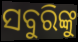
ସବୁରିଙ୍କୁ